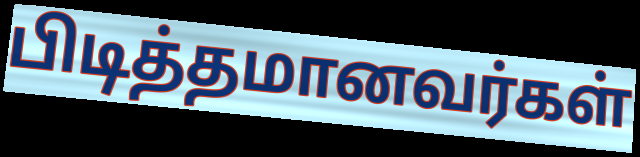
பிடித்தமானவர்கள்